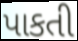
પાકતી